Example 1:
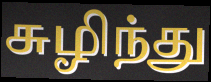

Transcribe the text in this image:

சுழிந்து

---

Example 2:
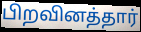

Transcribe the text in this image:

பிறவினத்தார்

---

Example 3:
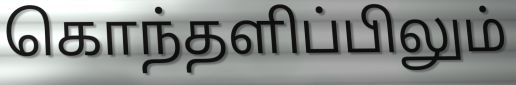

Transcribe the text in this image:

கொந்தளிப்பிலும்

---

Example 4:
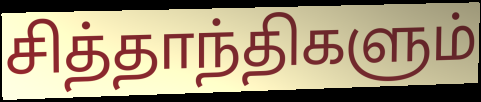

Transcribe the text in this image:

சித்தாந்திகளும்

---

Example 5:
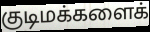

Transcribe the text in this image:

குடிமக்களைக்